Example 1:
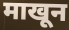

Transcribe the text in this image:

माखून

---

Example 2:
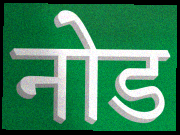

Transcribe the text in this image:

नोड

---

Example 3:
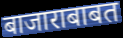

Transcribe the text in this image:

बाजाराबाबत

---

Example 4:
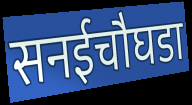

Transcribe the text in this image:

सनईचौघडा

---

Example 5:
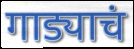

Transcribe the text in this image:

गाड्याचं